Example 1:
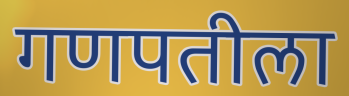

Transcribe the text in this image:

गणपतीला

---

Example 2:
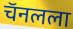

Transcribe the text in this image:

चॅनलला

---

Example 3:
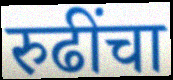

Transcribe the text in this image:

रुढींचा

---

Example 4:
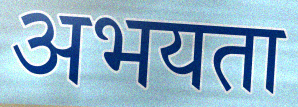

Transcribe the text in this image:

अभयता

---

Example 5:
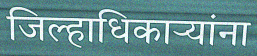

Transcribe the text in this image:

जिल्हाधिकाऱ्यांना